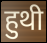
हुथी